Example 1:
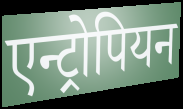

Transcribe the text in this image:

एन्ट्रोपियन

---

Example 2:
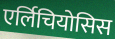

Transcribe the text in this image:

एर्लिचियोसिस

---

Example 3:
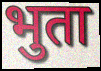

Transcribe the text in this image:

भुता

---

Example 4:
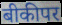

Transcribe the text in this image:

बीकीपर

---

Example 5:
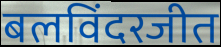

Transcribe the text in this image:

बलविंदरजीत